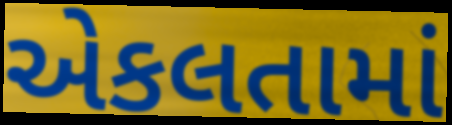
એકલતામાં